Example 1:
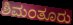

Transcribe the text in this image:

ಶಿಮಂತೂರು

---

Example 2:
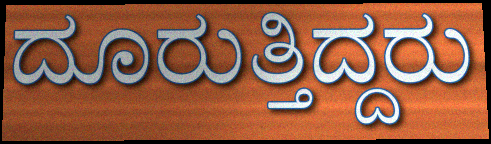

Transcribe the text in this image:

ದೂರುತ್ತಿದ್ದರು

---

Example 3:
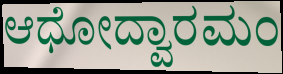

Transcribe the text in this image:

ಆಧೋದ್ವಾರಮಂ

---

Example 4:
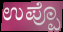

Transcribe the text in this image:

ಉಪ್ಪೊ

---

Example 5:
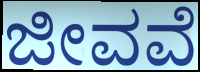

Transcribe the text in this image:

ಜೀವವೆ